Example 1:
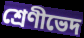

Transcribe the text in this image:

শ্রেণীভেদ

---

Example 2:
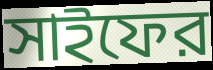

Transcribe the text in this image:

সাইফের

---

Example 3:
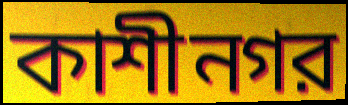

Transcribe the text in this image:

কাশীনগর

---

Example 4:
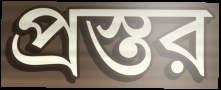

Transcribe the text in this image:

প্রস্তর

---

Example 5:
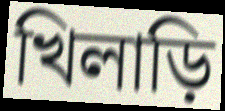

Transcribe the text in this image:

খিলাড়ি